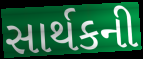
સાર્થકની